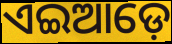
ଏଇଆଡ଼େ